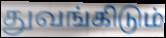
துவங்கிடும்